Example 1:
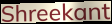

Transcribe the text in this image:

Shreekant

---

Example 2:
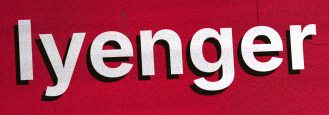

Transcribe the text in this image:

Iyenger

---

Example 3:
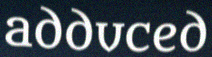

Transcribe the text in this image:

adduced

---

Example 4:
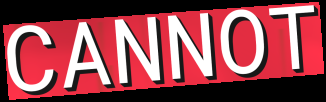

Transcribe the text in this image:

CANNOT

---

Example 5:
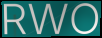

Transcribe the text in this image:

RWO